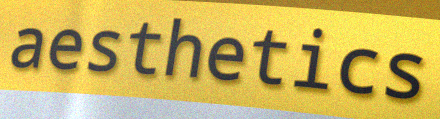
aesthetics